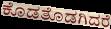
ಕೊಡತೊಡಗಿದರೆ